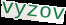
vyzov